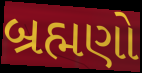
બ્રહ્મણો